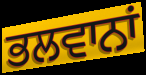
ਭਲਵਾਨਾਂ